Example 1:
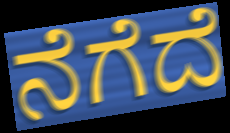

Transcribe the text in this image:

ನೆಗೆದೆ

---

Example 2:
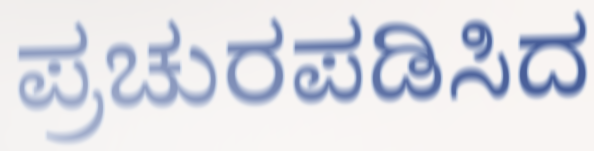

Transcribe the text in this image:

ಪ್ರಚುರಪಡಿಸಿದ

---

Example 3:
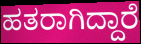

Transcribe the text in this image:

ಹತರಾಗಿದ್ದಾರೆ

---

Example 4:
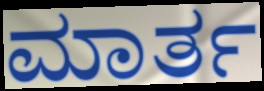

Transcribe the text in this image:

ಮಾರ್ತ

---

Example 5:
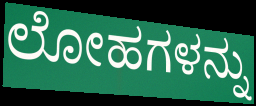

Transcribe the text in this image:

ಲೋಹಗಳನ್ನು